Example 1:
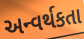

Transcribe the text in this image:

અન્વર્થકતા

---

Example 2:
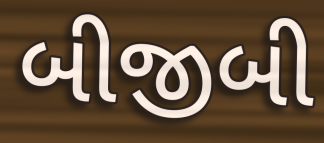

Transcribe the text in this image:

બીજીબી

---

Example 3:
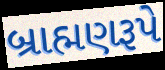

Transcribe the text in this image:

બ્રાહ્મણરૂપે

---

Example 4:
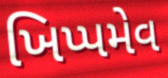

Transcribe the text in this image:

ખિપ્પમેવ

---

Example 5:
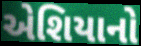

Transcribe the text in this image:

એશિયાનો